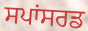
ਸਪਾਂਸਰਡ